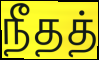
நீதத்